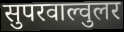
सुपरवाल्वुलर